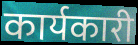
कार्यकारी